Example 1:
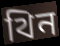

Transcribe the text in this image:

থিন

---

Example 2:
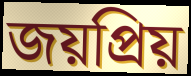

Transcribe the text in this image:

জয়প্রিয়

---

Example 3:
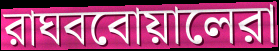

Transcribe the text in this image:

রাঘববোয়ালেরা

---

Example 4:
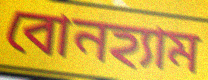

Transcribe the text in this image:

বোনহ্যাম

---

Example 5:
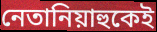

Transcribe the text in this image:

নেতানিয়াহুকেই